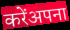
करेंअपना